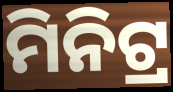
ମିନିଟ୍ର